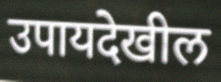
उपायदेखील